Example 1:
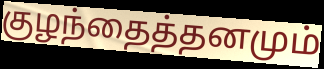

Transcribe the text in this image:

குழந்தைத்தனமும்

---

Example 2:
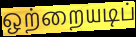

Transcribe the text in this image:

ஒற்றையடிப்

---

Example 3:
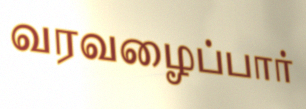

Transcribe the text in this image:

வரவழைப்பார்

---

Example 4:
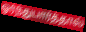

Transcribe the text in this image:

ஓர்ந்துபார்த்தால்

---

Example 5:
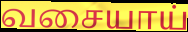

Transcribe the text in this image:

வசையாய்